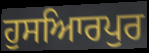
ਹੁਸਆਿਰਪੁਰ